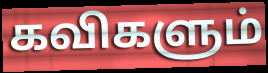
கவிகளும்